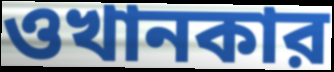
ওখানকার